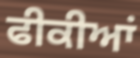
ਫੀਕੀਆਂ